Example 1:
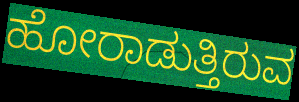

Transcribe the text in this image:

ಹೋರಾಡುತ್ತಿರುವ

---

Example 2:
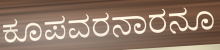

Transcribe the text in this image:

ಕೂಪವರನಾರನೂ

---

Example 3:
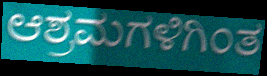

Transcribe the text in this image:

ಆಶ್ರಮಗಳಿಗಿಂತ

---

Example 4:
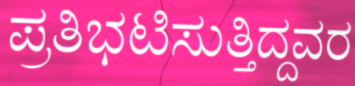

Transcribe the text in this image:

ಪ್ರತಿಭಟಿಸುತ್ತಿದ್ದವರ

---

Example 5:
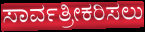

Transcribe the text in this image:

ಸಾರ್ವತ್ರೀಕರಿಸಲು